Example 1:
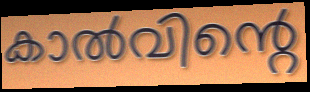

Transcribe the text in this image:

കാൽവിന്റെ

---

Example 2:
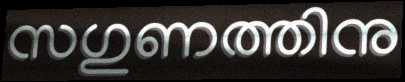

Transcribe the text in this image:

സഗുണത്തിനു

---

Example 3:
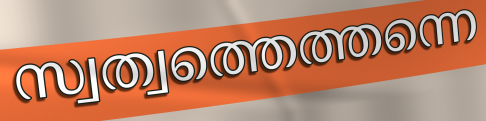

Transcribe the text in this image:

സ്വത്വത്തെത്തന്നെ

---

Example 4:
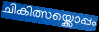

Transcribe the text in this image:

ചികിത്സയ്ക്കൊപ്പം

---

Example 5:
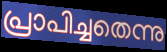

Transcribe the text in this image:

പ്രാപിച്ചതെന്നു